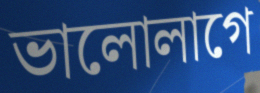
ভালোলাগে